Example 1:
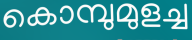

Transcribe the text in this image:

കൊമ്പുമുളച്ച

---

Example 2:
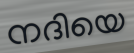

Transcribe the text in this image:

നദിയെ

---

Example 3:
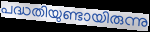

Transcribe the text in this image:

പദ്ധതിയുണ്ടായിരുന്നു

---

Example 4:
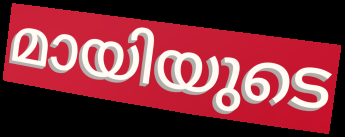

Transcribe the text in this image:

മായിയുടെ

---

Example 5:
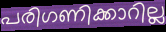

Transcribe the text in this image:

പരിഗണിക്കാറില്ല